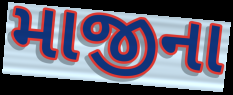
માજીના